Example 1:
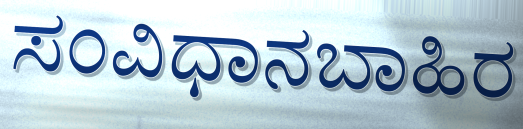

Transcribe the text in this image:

ಸಂವಿಧಾನಬಾಹಿರ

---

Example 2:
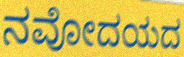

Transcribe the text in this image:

ನವೋದಯದ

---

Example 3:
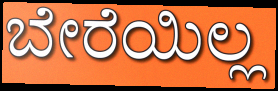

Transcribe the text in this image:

ಬೇರೆಯಿಲ್ಲ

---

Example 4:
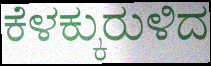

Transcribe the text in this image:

ಕೆಳಕ್ಕುರುಳಿದ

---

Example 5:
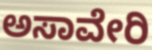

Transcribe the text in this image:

ಅಸಾವೇರಿ